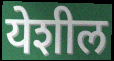
येशील